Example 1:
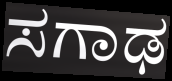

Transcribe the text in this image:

ಸಗಾಢ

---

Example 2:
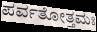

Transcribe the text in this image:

ಪರ್ವತೋತ್ತಮಃ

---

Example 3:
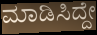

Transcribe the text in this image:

ಮಾಡಿಸಿದ್ದೇ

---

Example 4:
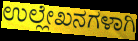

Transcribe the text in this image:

ಉಲ್ಲೇಖನಗಳಾಗಿ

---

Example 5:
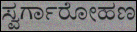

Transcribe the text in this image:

ಸ್ವರ್ಗಾರೋಹಣ